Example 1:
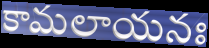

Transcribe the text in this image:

కామలాయనః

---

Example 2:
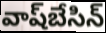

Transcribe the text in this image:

వాష్‌బేసిన్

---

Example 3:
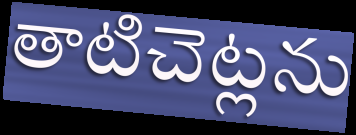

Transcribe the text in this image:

తాటిచెట్లను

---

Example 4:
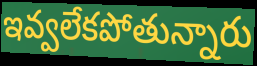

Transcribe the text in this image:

ఇవ్వలేకపోతున్నారు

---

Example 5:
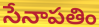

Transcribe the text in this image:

సేనాపతిం